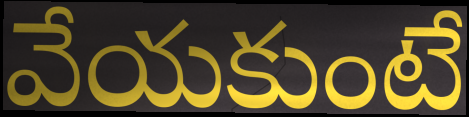
వేయకుంటే